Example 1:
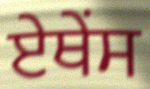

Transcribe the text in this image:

ਏਥੇਂਸ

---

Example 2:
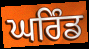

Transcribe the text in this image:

ਘਰਿੰਡ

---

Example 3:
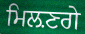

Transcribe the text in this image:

ਮਿਲ਼ਣਗੇ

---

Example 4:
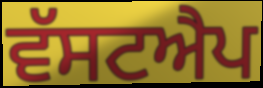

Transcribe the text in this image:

ਵੱਸਟਐਪ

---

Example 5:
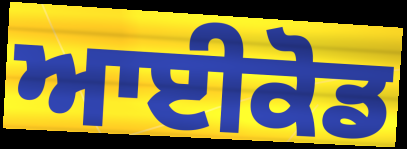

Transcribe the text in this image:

ਆਈਕੋਡ